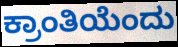
ಕ್ರಾಂತಿಯೆಂದು